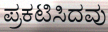
ಪ್ರಕಟಿಸಿದವು